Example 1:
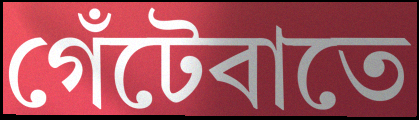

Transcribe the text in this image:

গেঁটেবাতে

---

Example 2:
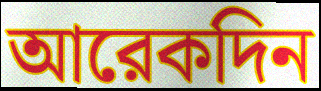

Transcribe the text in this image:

আরেকদিন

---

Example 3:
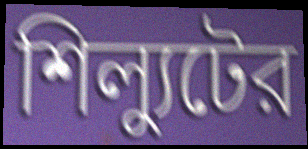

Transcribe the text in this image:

শিল্যুটের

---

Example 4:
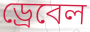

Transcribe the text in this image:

ড্রেবেল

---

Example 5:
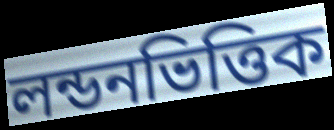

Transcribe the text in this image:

লন্ডনভিত্তিক